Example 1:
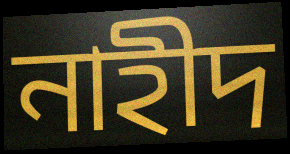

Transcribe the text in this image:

নাহীদ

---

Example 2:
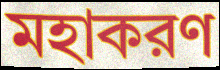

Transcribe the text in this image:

মহাকরণ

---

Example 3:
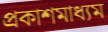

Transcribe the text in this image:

প্রকাশমাধ্যম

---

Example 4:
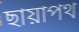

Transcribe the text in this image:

ছায়াপথ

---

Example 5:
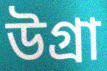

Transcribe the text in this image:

উগ্রা